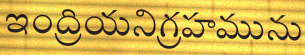
ఇంద్రియనిగ్రహమును